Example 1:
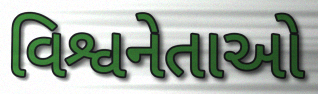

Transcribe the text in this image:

વિશ્વનેતાઓ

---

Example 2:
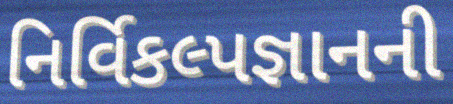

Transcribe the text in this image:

નિર્વિકલ્પજ્ઞાનની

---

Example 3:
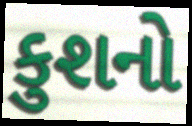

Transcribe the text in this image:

કુશનો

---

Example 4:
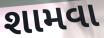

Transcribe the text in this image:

શામવા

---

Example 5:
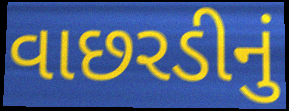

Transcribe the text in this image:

વાછરડીનું